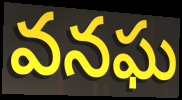
వనఘ